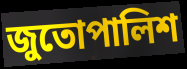
জুতোপালিশ